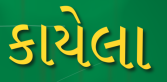
કાયેલા